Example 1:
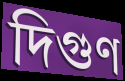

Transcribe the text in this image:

দিগুণ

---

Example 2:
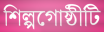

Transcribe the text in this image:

শিল্পগোষ্ঠীটি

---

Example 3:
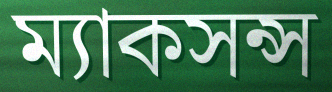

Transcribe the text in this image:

ম্যাকসন্স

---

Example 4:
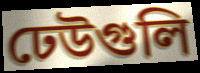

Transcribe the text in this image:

ঢেউগুলি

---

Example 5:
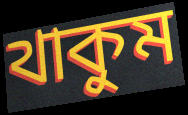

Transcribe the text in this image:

থাকুম